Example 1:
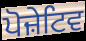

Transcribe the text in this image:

ਪੋਜ਼ੇਟਿਵ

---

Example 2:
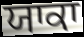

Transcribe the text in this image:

ਯਾਕਾ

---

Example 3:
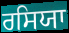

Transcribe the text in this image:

ਰਸਿਯਾ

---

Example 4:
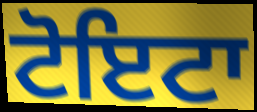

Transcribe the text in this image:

ਟੋਇਟਾ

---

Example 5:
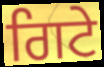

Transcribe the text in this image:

ਗਿਟੇ